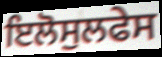
ਇਲੋਸੁਲਫੇਸ